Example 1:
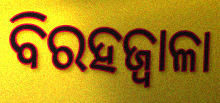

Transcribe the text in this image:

ବିରହଜ୍ୱାଳା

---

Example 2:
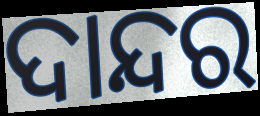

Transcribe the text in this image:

ଦାନ୍ଦର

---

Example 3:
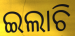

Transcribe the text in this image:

ଇଲାଚି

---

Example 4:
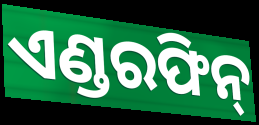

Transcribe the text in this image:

ଏଣ୍ଡରଫିନ୍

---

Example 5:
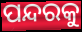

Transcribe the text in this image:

ପନ୍ଦରକୁ